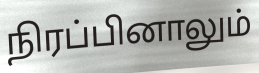
நிரப்பினாலும்